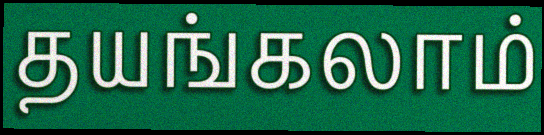
தயங்கலாம்